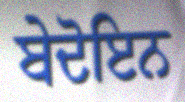
ਬੇਦੋਇਨ